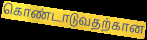
கொண்டாடுவதற்கான